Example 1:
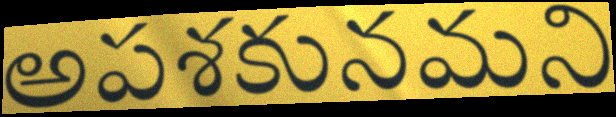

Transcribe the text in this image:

అపశకునమని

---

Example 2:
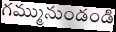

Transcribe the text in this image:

గమ్మునుండండి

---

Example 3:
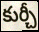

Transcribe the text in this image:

కుర్చీ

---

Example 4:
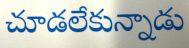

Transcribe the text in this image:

చూడలేకున్నాడు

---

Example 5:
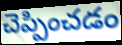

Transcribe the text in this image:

చెప్పించడం